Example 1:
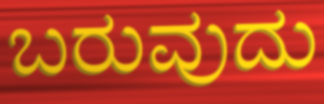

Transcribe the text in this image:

ಬರುವುದು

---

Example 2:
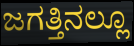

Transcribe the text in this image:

ಜಗತ್ತಿನಲ್ಲೂ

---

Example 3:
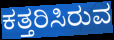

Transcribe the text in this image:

ಕತ್ತರಿಸಿರುವ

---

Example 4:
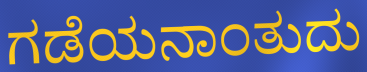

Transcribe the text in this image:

ಗಡೆಯನಾಂತುದು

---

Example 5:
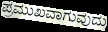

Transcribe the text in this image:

ಪ್ರಮುಖವಾಗುವುದು